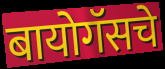
बायोगॅसचे